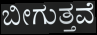
ಬೀಗುತ್ತವೆ